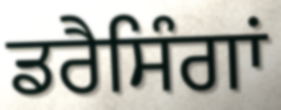
ਡਰੈਸਿੰਗਾਂ